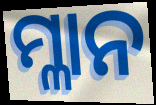
ମ୍ଳାନ